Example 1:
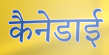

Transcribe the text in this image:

कैनेडाई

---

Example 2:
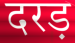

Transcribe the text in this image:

दरड़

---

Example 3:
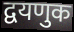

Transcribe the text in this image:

द्वयणुक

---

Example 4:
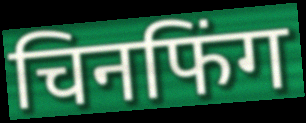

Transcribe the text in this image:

चिनफिंग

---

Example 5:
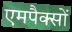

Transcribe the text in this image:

एमपैक्सों